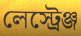
লেস্ট্রেঞ্জ